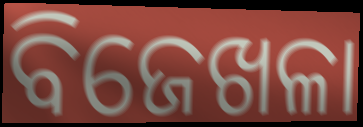
ବିଜେଖଳା